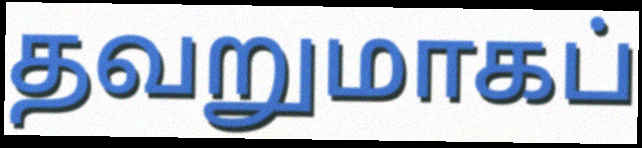
தவறுமாகப்